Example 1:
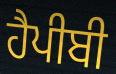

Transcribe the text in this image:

ਹੈਪੀਬੀ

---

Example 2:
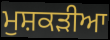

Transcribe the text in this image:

ਮੁਸ਼ਕੜੀਆ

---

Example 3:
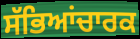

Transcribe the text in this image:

ਸੱਭਿਆਂਚਾਰਕ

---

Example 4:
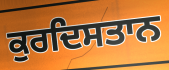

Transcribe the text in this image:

ਕੁਰਦਿਸਤਾਨ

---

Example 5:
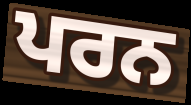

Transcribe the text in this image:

ਪਰਨ